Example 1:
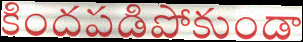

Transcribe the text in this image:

కిందపడిపోకుండా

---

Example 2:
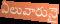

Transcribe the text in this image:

ఏలువారునై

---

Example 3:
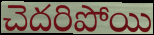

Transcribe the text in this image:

చెదరిపోయి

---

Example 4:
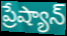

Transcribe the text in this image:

ప్రేష్యాన్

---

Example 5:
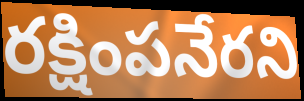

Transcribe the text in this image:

రక్షింపనేరని